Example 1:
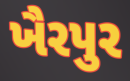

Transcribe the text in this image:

ખૈરપુર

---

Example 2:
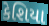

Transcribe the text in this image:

કેશિયા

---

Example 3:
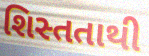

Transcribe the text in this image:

શિસ્તતાથી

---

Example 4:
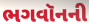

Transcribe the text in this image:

ભગવૉનની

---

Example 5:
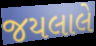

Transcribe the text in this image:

જયલાલે